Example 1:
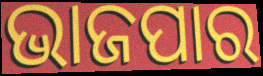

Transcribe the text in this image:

ଭାଜପାର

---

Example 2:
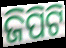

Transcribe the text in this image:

ଜିପିଟି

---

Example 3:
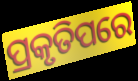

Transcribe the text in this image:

ପ୍ରକୃତିପରେ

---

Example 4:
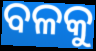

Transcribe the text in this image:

ବଳକୁ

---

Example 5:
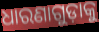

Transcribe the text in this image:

ଧାରଣାଗୁଡ଼ାକୁ